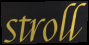
stroll